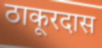
ठाकूरदास